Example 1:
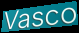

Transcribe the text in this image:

Vasco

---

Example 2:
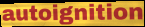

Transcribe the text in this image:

autoignition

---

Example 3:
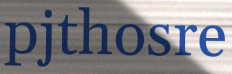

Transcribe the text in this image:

pjthosre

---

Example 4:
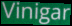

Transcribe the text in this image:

Vinigar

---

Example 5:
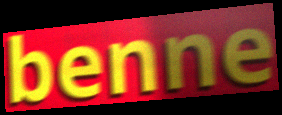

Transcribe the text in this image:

benne